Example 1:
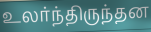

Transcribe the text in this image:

உலர்ந்திருந்தன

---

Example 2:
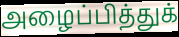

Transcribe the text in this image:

அழைப்பித்துக்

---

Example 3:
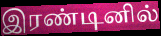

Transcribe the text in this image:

இரண்டினில்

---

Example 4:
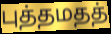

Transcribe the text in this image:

புத்தமதத்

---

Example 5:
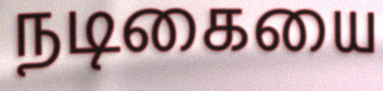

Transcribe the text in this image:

நடிகையை